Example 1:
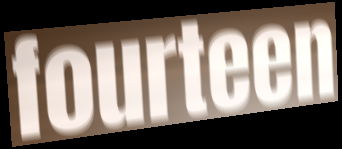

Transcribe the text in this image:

fourteen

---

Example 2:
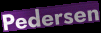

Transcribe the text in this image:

Pedersen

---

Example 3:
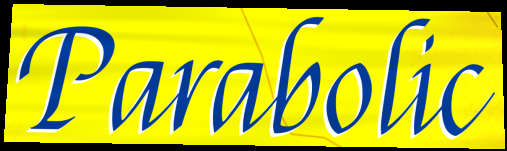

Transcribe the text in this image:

Parabolic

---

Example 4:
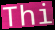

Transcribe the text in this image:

Thi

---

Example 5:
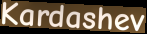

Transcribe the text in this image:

Kardashev